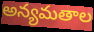
అన్యమతాల